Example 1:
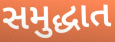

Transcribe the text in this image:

સમુદ્ધાત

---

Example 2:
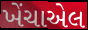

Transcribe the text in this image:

ખેંચાએલ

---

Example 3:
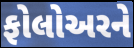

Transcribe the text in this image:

ફોલોઅરને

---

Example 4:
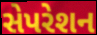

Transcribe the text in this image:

સેપરેશન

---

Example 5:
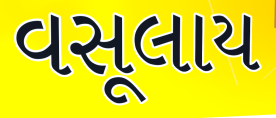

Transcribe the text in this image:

વસૂલાય